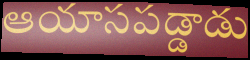
ఆయాసపడ్డాడు